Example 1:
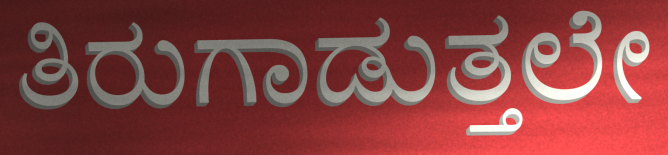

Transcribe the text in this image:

ತಿರುಗಾಡುತ್ತಲೇ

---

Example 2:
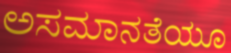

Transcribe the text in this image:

ಅಸಮಾನತೆಯೂ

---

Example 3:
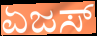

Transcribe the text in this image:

ಏಜಸ್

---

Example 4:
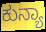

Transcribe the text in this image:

ಕುನ್ಯಾ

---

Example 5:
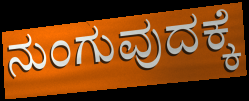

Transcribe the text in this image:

ನುಂಗುವುದಕ್ಕೆ